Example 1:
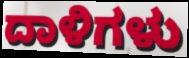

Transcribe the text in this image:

ದಾಳಿಗಳು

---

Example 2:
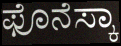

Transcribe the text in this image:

ಫೊನೆಸ್ಕಾ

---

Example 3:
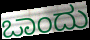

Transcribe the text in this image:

ಒಾಂದು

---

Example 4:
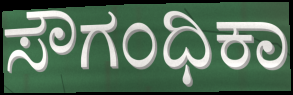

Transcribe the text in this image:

ಸೌಗಂಧಿಕಾ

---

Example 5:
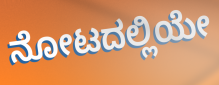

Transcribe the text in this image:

ನೋಟದಲ್ಲಿಯೇ